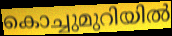
കൊച്ചുമുറിയിൽ